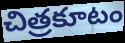
చిత్రకూటం